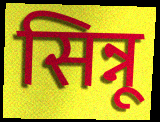
सिन्नू